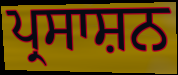
ਪ੍ਰਸਾਸ਼ਨ